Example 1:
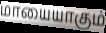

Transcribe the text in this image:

மாயையாகும்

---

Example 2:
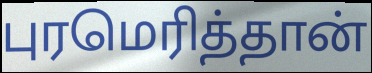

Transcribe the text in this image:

புரமெரித்தான்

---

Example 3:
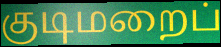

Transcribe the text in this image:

குடிமறைப்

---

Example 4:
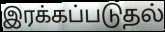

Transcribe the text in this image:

இரக்கப்படுதல்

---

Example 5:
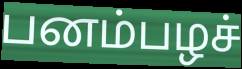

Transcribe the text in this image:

பனம்பழச்